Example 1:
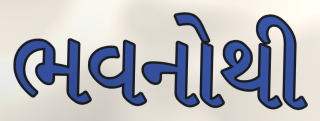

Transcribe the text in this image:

ભવનોથી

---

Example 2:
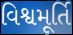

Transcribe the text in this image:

વિશ્વમૂર્તિ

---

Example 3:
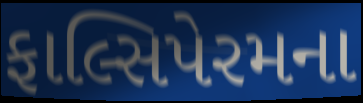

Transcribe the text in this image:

ફાલ્સિપેરમના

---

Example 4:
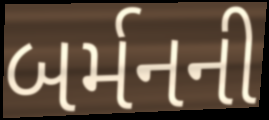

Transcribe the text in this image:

બર્મનની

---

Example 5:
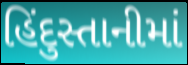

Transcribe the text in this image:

હિંદુસ્તાનીમાં